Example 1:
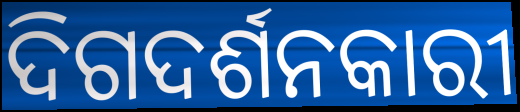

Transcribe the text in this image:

ଦିଗଦର୍ଶନକାରୀ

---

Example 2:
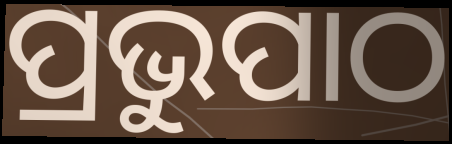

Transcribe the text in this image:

ପ୍ରଭୁପାଠ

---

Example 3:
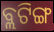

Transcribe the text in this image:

ବ୍ଲଟିଙ୍ଗ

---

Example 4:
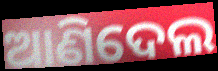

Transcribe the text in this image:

ଆଣିଦେଲ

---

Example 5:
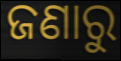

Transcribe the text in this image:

ଜଣାରୁ